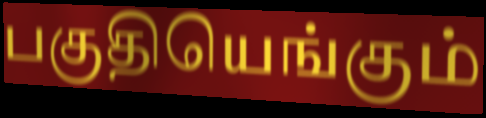
பகுதியெங்கும்